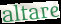
altare